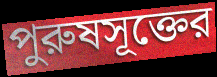
পুরুষসূক্তের